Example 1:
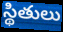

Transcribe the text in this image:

స్థితులు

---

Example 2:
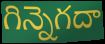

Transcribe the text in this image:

గిన్నెగదా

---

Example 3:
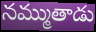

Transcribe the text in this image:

నమ్ముతాడు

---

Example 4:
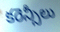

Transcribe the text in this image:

కరెన్సీలు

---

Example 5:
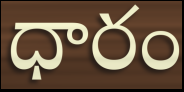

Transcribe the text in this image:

ధారం